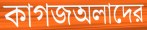
কাগজঅলাদের